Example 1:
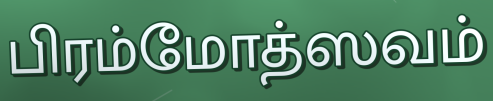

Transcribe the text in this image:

பிரம்மோத்ஸவம்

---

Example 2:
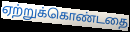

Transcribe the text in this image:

ஏற்றுக்கொண்டதை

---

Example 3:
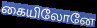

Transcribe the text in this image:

கையிலோனே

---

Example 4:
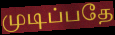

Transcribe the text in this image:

முடிப்பதே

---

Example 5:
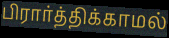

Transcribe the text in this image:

பிரார்த்திக்காமல்